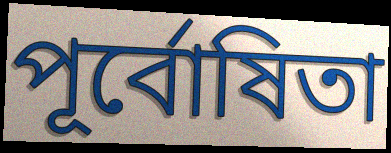
পূর্বোষিতা